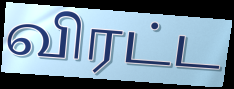
விரட்ட